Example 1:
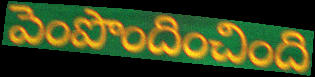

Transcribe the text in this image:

పెంపొందించింది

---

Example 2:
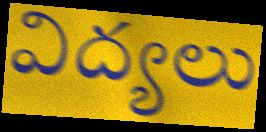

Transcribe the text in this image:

విద్యలు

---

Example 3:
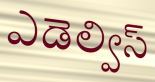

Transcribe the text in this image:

ఎడెల్విస్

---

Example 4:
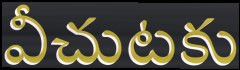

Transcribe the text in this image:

వీచుటకు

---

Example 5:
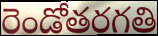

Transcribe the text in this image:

రెండోతరగతి